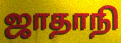
ஜாதாநி